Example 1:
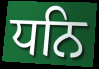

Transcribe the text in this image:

ਧਨਿ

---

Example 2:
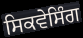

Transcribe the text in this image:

ਸਿਕਵੇਸਿੰਗ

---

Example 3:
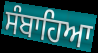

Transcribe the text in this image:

ਸੰਬਾਹਿਆ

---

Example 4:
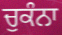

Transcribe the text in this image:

ਚੁਕੰਨਾ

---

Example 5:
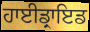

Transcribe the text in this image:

ਹਾਈਡ੍ਰਾਇਡ